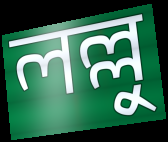
লল্লু